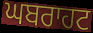
ਘਬਰਾਹਟ